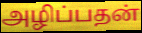
அழிப்பதன்